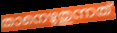
താനെഴുതുന്നത്